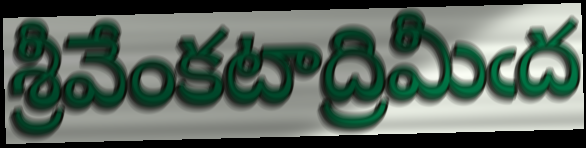
శ్రీవేంకటాద్రిమీఁద